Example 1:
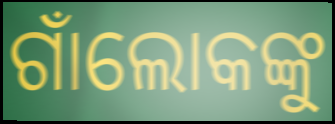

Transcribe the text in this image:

ଗାଁଲୋକଙ୍କୁ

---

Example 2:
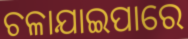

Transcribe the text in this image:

ଚଳାଯାଇପାରେ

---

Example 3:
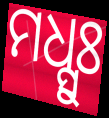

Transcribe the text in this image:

ମଧ୍ସୁଃ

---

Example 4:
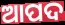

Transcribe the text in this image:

ଆପଦ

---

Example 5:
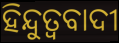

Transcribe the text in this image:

ହିନ୍ଦୁତ୍ବବାଦୀ